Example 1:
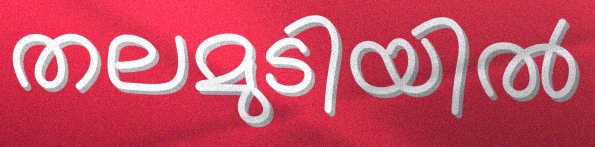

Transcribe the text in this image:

തലമുടിയിൽ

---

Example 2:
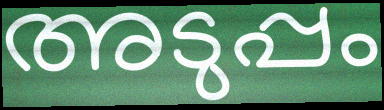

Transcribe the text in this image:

അടുപ്പം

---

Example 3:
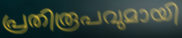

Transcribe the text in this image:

പ്രതിരൂപവുമായി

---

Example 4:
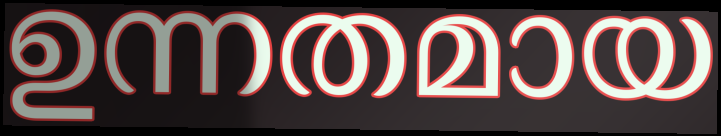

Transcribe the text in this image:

ഉന്നതമായ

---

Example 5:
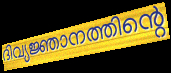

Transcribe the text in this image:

ദിവ്യജ്ഞാനത്തിന്റെ